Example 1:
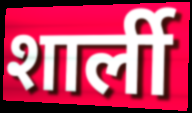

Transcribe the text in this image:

शार्ली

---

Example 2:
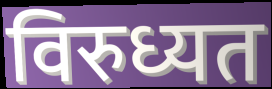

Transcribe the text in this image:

विरुध्यत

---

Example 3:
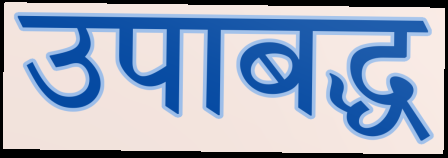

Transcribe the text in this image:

उपाबद्ध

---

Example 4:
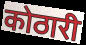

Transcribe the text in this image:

कोठारी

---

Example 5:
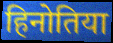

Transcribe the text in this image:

हिनोतिया